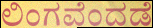
ಲಿಂಗವೆಂದಡೆ